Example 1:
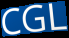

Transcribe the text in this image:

CGL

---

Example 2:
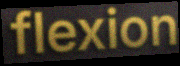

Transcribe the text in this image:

flexion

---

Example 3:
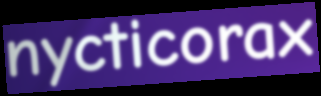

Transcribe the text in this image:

nycticorax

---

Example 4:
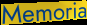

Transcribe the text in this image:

Memoria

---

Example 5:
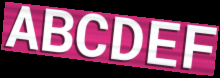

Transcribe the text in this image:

ABCDEF